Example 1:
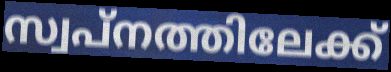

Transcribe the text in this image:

സ്വപ്നത്തിലേക്ക്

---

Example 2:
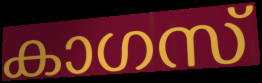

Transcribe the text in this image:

കാഗസ്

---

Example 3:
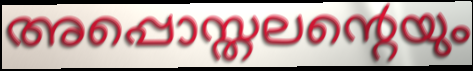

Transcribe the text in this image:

അപ്പൊസ്തലന്റെയും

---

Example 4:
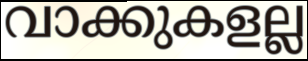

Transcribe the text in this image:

വാക്കുകളല്ല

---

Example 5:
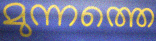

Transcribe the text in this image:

മുന്നത്തെ